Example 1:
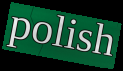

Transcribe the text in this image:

polish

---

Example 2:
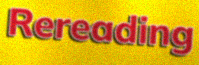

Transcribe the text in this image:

Rereading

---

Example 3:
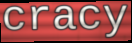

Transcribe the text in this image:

cracy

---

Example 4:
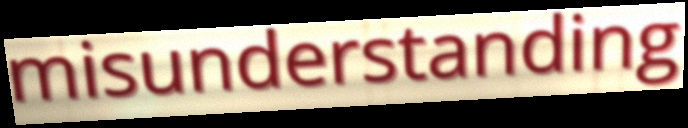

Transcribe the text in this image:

misunderstanding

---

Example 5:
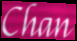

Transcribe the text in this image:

Chan